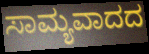
ಸಾಮ್ಯವಾದದ